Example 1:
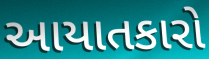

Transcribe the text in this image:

આયાતકારો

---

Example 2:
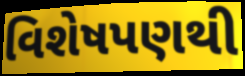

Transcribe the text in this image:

વિશેષપણથી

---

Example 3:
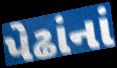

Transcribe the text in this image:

પેઢાંનાં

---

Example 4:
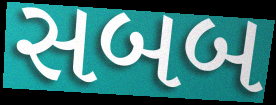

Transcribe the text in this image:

સબબ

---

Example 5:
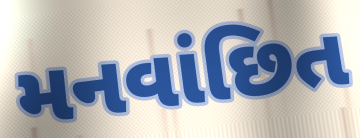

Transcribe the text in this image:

મનવાંછિત